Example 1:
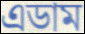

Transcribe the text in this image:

এডাম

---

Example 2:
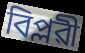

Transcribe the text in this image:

বিপ্লৱী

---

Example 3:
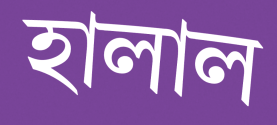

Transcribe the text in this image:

হালাল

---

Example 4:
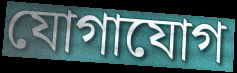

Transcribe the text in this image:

যোগাযোগ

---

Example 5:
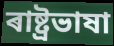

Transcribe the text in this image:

ৰাষ্ট্ৰভাষা